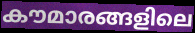
കൗമാരങ്ങളിലെ